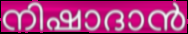
നിഷാദാൻ